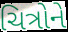
ચિત્રોને